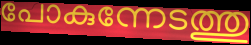
പോകുന്നേടത്തു